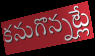
కనుగొన్నట్లే